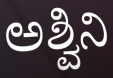
ಅಶ್ವಿನಿ